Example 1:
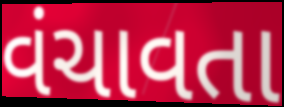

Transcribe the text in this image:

વંચાવતા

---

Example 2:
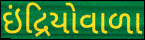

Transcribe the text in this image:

ઇંદ્રિયોવાળા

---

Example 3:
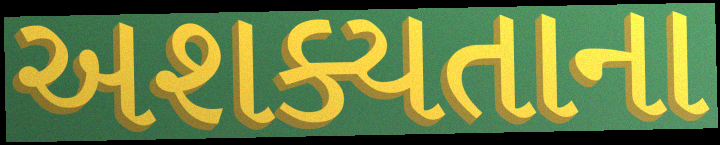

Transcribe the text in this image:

અશક્યતાના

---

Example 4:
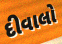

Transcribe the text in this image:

દીવાલો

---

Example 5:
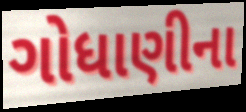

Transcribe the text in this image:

ગોધાણીના